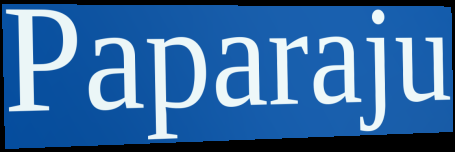
Paparaju